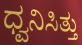
ಧ್ವನಿಸಿತ್ತು